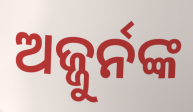
ଅଜ୍ଜୁର୍ନଙ୍କ